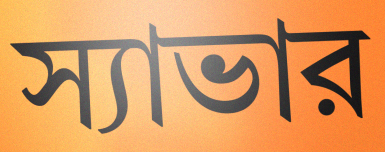
স্যাভার